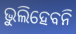
ଭୁଲିହେବନି